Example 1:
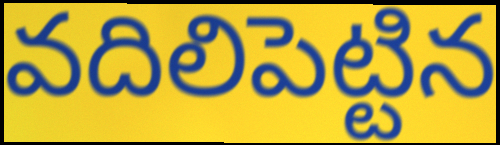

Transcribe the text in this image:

వదిలిపెట్టిన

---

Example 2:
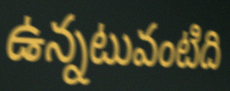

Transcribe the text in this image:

ఉన్నటువంటిది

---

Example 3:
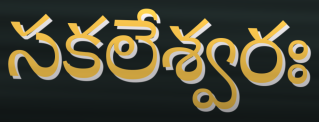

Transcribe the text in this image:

సకలేశ్వరః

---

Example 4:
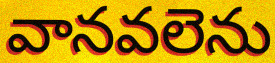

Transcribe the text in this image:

వానవలెను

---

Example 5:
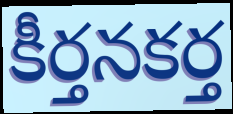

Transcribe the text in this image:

కీర్తనకర్త